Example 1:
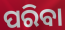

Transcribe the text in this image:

ପରିବା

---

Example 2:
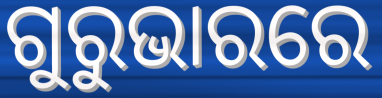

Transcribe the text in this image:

ଗୁରୁଭାରରେ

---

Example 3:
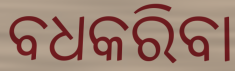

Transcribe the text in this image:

ବଧକରିବା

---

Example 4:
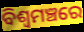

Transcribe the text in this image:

ବିଶ୍ୱମଞ୍ଚରେ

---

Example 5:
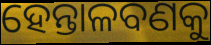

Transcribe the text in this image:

ହେନ୍ତାଳବଣକୁ